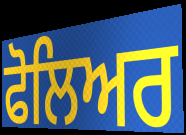
ਫੋਲਿਅਰ